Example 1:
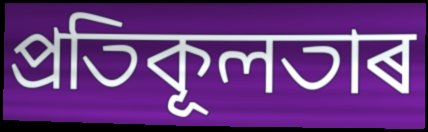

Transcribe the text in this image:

প্ৰতিকূলতাৰ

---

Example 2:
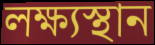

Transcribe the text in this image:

লক্ষ্যস্থান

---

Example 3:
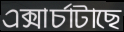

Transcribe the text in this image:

এক্সাৰ্চাটাছে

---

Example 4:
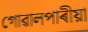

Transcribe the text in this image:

গোৱালপাৰীয়া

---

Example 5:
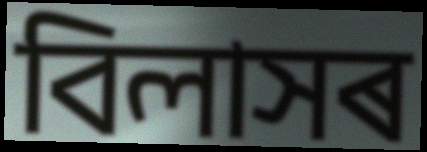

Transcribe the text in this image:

বিলাসৰ